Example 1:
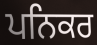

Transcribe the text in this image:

ਪਨਿਕਰ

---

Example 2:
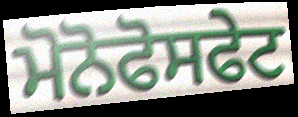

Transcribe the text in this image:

ਮੋਨੋਫੋਸਫੇਟ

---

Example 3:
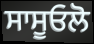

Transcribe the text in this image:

ਸਾਸੂਓਲੋ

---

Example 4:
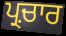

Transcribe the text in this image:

ਪ਼੍ਰਚਾਰ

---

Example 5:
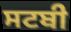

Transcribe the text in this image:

ਸਟਬੀ